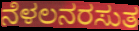
ನೆಳಲನರಸುತ